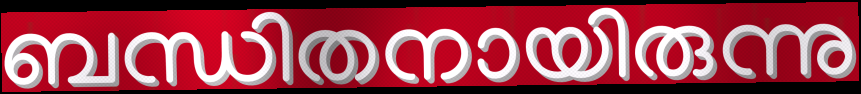
ബന്ധിതനായിരുന്നു